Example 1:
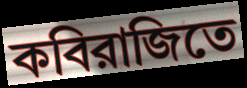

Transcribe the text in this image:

কবিরাজিতে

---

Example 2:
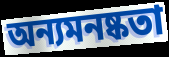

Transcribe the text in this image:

অন্যমনষ্কতা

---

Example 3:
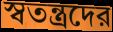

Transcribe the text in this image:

স্বতন্ত্রদের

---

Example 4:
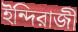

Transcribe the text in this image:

ইন্দিরাজী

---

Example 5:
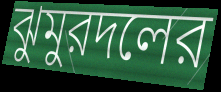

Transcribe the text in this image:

ঝুমুরদলের